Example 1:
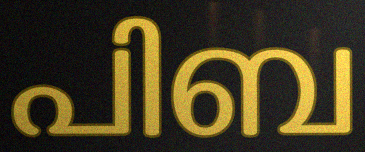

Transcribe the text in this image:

പിബ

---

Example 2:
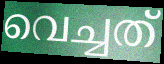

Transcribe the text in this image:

വെച്ചത്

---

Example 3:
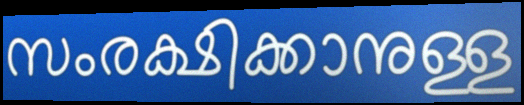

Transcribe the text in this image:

സംരക്ഷിക്കാനുള്ള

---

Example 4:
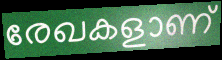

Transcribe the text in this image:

രേഖകളാണ്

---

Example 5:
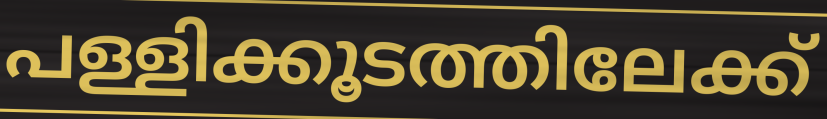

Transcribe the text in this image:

പള്ളിക്കൂടത്തിലേക്ക്